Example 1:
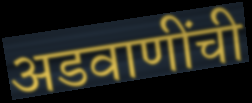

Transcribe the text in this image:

अडवाणींची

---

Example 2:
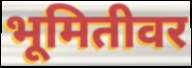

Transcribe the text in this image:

भूमितीवर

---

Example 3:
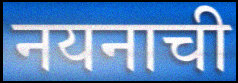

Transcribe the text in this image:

नयनाची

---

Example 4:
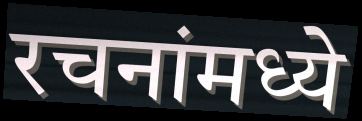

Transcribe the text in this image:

रचनांमध्ये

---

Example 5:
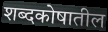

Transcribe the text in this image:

शब्दकोषातील